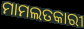
ମାମଲତକାରୀ